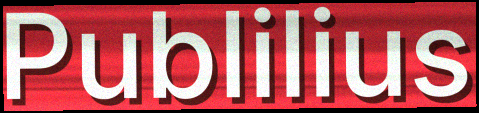
Publilius